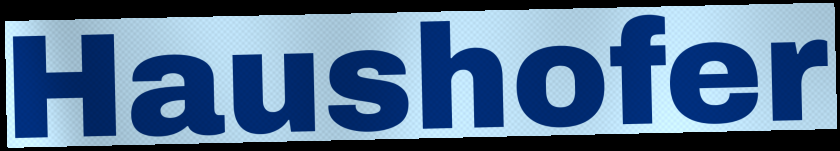
Haushofer